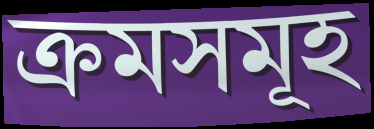
ক্ৰমসমূহ